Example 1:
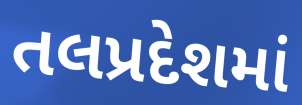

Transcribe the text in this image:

તલપ્રદેશમાં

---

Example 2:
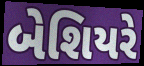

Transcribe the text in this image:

બેશિયરે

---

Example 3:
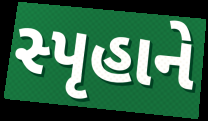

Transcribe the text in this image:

સ્પૃહાને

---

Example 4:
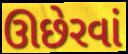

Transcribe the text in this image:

ઊછેરવાં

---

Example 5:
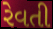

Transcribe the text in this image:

રેવતી